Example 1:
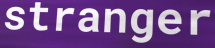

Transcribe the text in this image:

stranger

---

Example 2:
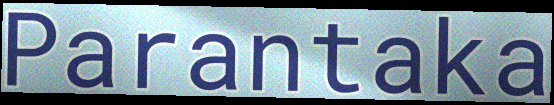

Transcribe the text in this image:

Parantaka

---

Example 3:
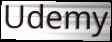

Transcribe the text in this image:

Udemy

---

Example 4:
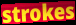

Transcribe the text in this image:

strokes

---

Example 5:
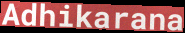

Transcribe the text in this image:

Adhikarana